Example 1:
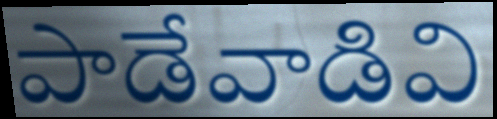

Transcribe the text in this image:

పాడేవాడివి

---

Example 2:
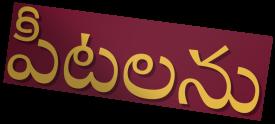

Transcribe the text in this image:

పీటలను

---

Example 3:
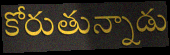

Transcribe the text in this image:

కోరుతున్నాడు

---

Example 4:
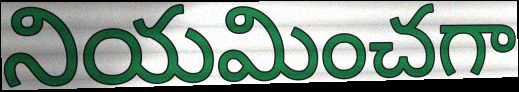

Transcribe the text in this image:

నియమించగా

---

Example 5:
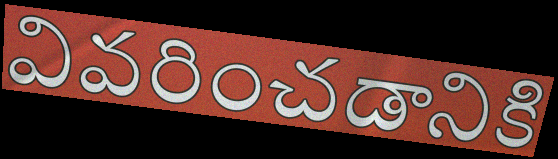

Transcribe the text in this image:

వివరించడానికి